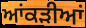
ਆਂਕੜੀਆਂ